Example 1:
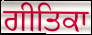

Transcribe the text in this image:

ਗੀਤਿਕਾ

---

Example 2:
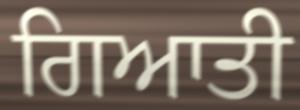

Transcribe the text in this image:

ਗਿਆਤੀ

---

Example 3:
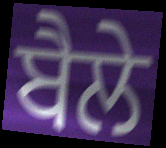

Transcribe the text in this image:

ਬੈਲੇ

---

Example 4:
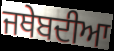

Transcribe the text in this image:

ਜਥੇਬਦੀਆ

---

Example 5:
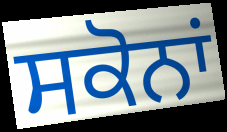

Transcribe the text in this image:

ਸਕੋਨਾਂ